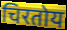
चिरतोय